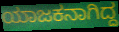
ಯಾಜಕನಾಗಿದ್ದ